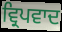
ਵ੍ਰਿਪਵਾਦ